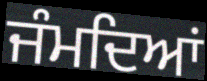
ਜੰਮਦਿਆਂ